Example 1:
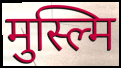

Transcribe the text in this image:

मुस्ल्मि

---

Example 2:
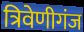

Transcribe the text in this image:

त्रिवेणीगंज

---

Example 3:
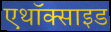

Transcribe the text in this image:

एथॉक्साइड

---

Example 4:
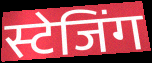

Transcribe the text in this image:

स्टेजिंग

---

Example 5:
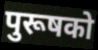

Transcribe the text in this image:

पुरूषको